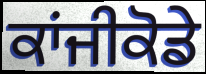
ਕਾਂਜੀਕੋਡੇ